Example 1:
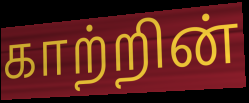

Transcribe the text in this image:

காற்றின்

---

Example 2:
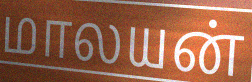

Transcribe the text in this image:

மாலயன்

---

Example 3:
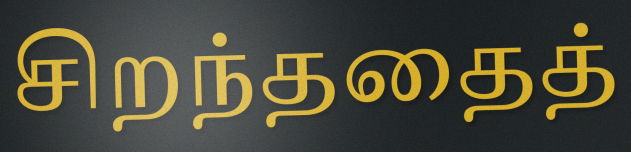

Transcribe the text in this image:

சிறந்ததைத்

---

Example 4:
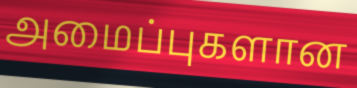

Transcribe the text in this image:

அமைப்புகளான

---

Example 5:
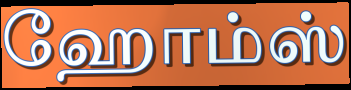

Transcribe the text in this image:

ஹோம்ஸ்